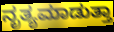
ನೃತ್ಯಮಾಡುತ್ತಾ